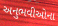
અનુભવીઓના